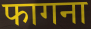
फागना